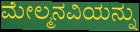
ಮೇಲ್ಮನವಿಯನ್ನು